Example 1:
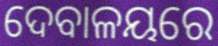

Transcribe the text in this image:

ଦେବାଳୟରେ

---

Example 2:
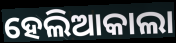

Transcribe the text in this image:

ହେଲିଆକାଲା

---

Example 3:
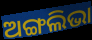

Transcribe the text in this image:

ଅଙ୍ଗଲିଭା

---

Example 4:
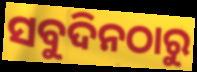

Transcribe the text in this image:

ସବୁଦିନଠାରୁ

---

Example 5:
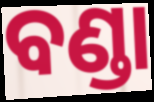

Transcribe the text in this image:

ବଣ୍ଡା